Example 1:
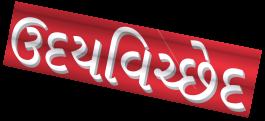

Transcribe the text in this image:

ઉદયવિચ્છેદ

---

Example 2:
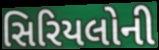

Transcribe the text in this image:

સિરિયલોની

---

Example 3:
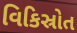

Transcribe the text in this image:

વિકિસ્રોત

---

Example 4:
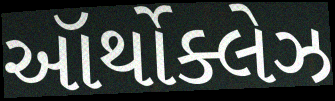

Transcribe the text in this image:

ઑર્થોક્લેઝ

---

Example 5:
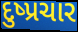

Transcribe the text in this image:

દુષ્પ્રચાર